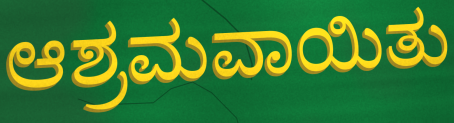
ಆಶ್ರಮವಾಯಿತು